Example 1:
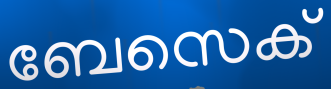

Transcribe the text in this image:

ബേസെക്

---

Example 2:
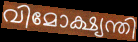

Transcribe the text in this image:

വിമോക്ഷ്യന്തി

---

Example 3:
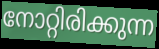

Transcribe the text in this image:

നോറ്റിരിക്കുന്ന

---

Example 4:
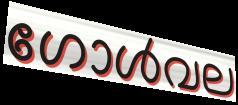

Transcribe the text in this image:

ഗോൾവല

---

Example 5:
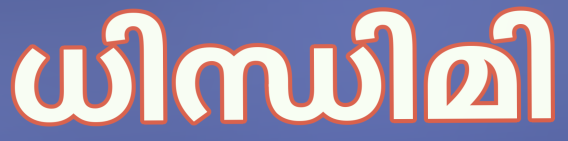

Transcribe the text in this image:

ധിന്ധിമി